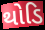
થોડિ